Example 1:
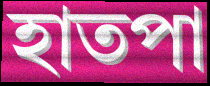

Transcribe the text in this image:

হাতপা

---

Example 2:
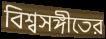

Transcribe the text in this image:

বিশ্বসঙ্গীতের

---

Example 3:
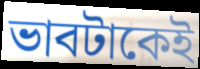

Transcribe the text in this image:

ভাবটাকেই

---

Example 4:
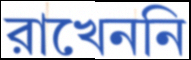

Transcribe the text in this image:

রাখেননি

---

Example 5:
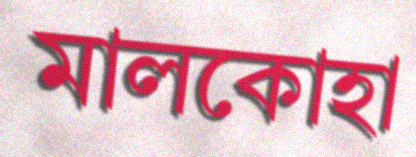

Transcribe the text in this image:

মালকোহা